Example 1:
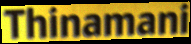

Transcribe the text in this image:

Thinamani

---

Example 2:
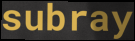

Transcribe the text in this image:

subray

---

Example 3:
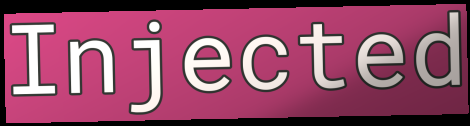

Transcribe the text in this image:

Injected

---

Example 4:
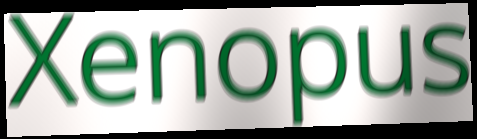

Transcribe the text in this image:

Xenopus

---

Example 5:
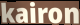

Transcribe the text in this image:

kairon